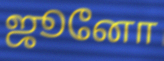
ஜூனோ